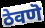
ठेवणॆ